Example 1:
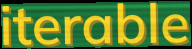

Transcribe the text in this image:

iterable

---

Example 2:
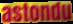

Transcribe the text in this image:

astondu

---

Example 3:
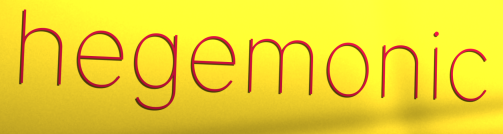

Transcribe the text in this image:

hegemonic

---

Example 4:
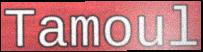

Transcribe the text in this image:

Tamoul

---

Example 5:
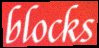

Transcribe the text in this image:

blocks